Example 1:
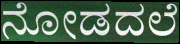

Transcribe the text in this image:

ನೋಡದಲೆ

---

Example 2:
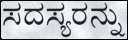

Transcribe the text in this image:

ಸದಸ್ಯರನ್ನು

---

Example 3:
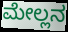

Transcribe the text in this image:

ಮೇಲ್ಲನ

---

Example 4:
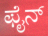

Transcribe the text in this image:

ಫೈನ್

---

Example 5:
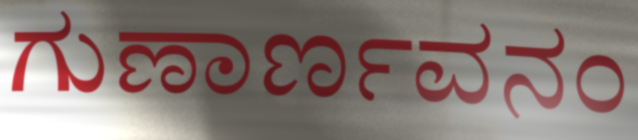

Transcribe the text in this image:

ಗುಣಾರ್ಣವನಂ